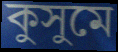
কুসুমে